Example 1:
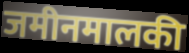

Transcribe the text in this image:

जमीनमालकी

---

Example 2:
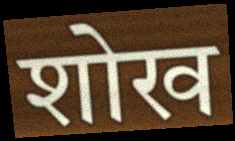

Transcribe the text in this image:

शोख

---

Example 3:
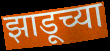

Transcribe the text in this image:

झाडूच्या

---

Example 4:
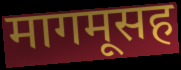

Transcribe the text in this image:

मागमूसह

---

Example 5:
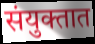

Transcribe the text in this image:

संयुक्तात